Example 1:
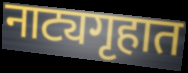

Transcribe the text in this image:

नाट्यगृहात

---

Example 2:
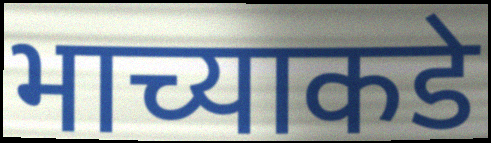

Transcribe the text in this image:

भाच्याकडे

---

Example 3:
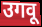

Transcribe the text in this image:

उगवू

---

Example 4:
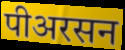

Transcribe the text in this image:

पीअरसन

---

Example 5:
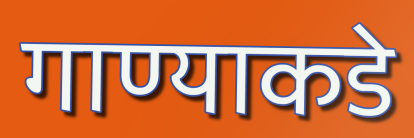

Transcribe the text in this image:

गाण्याकडे